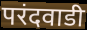
परंदवाडी